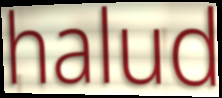
halud